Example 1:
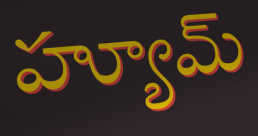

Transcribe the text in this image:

హ్యూమ్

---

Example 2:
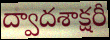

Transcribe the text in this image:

ద్వాదశాక్షరీ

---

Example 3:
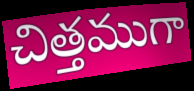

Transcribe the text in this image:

చిత్తముగా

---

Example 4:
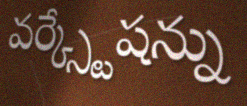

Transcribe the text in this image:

వర్క్స్టేషన్ను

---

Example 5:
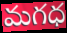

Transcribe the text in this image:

మగధ